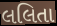
લલિતા